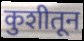
कुशीतून